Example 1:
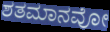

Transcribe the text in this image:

ಶತಮಾನವೋ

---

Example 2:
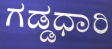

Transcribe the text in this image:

ಗಡ್ಡಧಾರಿ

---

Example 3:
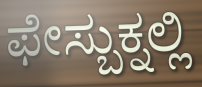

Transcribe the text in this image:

ಫೇಸ್ಬುಕ್ನಲ್ಲಿ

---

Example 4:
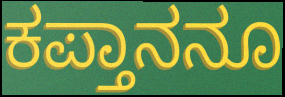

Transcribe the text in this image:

ಕಪ್ತಾನನೂ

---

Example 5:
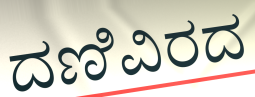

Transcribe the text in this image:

ದಣಿವಿರದ